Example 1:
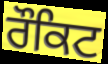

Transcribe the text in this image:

ਰੌਕਿਟ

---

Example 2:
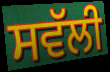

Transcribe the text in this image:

ਸਵੱਲੀ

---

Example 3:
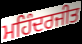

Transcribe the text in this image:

ਮਹਿੰਦਰਜੀਤ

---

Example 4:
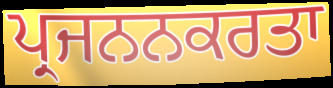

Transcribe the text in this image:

ਪ੍ਰਜਨਨਕਰਤਾ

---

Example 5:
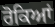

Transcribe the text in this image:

ਰੋਕਿਆਂ